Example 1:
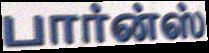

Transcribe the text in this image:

பார்ன்ஸ்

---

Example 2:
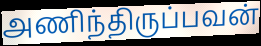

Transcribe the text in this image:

அணிந்திருப்பவன்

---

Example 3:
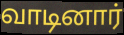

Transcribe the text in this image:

வாடினார்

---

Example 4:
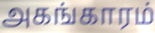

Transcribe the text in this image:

அகங்காரம்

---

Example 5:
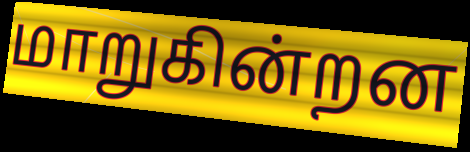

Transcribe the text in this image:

மாறுகின்றன